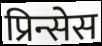
प्रिन्सेस